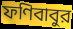
ফণিবাবুর